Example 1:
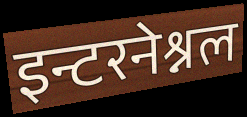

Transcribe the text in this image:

इन्टरनेश्नल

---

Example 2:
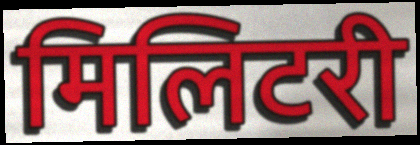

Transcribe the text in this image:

मिलिटरी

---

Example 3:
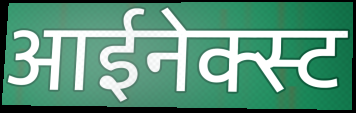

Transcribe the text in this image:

आईनेक्स्ट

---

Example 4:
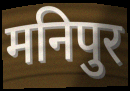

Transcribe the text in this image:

मनिपुर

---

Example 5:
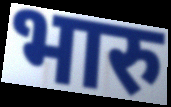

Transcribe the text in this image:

भारु